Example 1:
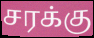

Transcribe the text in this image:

சரக்கு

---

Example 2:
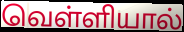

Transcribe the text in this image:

வெள்ளியால்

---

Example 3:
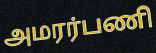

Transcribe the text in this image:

அமரர்பணி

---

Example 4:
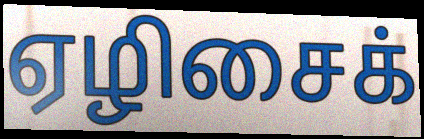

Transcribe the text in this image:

ஏழிசைக்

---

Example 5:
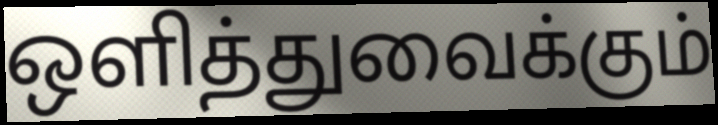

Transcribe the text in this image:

ஒளித்துவைக்கும்